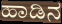
ಹಾಡಿನ